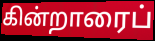
கின்றாரைப்